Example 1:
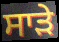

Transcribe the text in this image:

ਸਾੜੇ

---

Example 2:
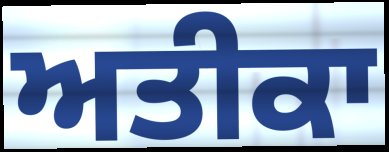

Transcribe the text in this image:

ਅਤੀਕਾ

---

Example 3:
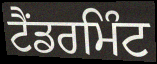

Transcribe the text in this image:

ਟੈਂਡਰਮਿੰਟ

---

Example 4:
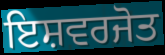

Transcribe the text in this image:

ਇਸ਼ਵਰਜੋਤ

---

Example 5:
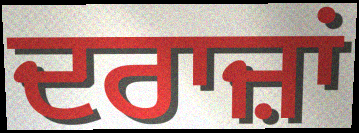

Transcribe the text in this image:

ਦਰਾਜ਼ਾਂ